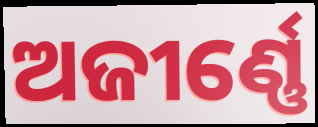
ଅଜୀର୍ଣ୍ଣେ